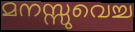
മനസ്സുവെച്ച